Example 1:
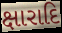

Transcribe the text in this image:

ક્ષારાદિ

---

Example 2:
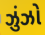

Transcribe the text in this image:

ઝુંઝો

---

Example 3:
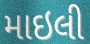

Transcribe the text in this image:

માઇલી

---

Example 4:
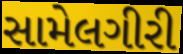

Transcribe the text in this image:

સામેલગીરી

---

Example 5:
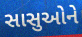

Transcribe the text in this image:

સાસુઓને